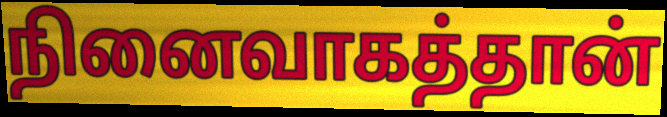
நினைவாகத்தான்